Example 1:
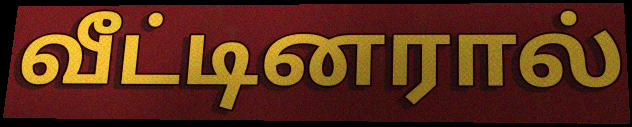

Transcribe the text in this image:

வீட்டினரால்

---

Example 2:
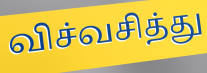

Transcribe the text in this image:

விச்வசித்து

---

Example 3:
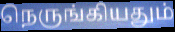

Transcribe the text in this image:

நெருங்கியதும்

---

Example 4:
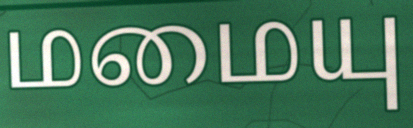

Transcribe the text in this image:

மமையு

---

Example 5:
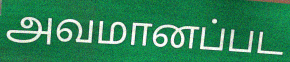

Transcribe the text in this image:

அவமானப்பட